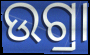
ଉଗ୍ରା